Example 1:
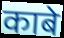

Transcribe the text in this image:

काबे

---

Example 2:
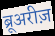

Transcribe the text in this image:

ब्रूअरीज़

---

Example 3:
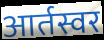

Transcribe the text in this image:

आर्तस्वर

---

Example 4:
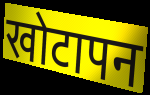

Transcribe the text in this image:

खोटापन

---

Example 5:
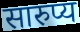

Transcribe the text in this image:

सारुप्य